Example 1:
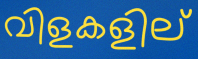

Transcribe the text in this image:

വിളകളില്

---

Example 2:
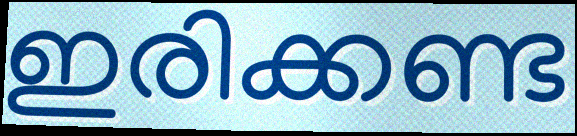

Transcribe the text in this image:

ഇരിക്കണ്ട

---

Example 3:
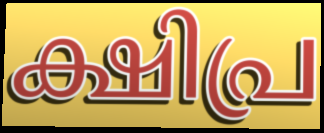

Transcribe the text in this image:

ക്ഷിപ്ര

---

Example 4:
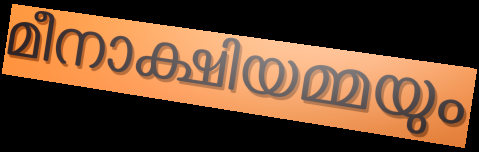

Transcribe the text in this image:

മീനാക്ഷിയമ്മയും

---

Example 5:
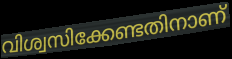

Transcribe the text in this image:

വിശ്വസിക്കേണ്ടതിനാണ്